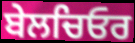
ਬੇਲਚਿਓਰ